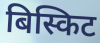
बिस्किट